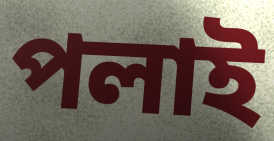
পলাই